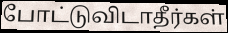
போட்டுவிடாதீர்கள்